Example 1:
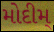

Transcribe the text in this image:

મોદીમ્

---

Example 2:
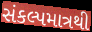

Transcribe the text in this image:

સંકલ્પમાત્રથી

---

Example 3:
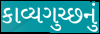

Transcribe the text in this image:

કાવ્યગુચ્છનું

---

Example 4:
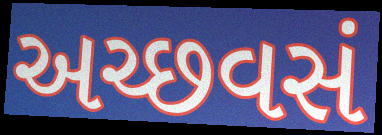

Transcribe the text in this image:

અચ્છવસં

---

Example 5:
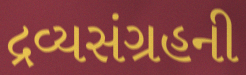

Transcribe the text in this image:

દ્રવ્યસંગ્રહની